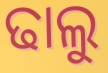
ଢାଲୁ